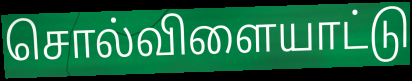
சொல்விளையாட்டு